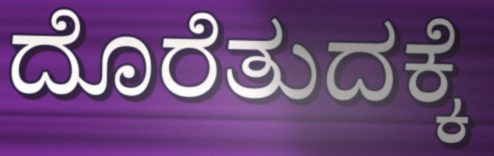
ದೊರೆತುದಕ್ಕೆ